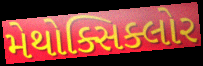
મેથોક્સિક્લોર